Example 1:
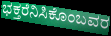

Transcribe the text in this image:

ಭಕ್ತರೆನಿಸಿಕೊಂಬವರ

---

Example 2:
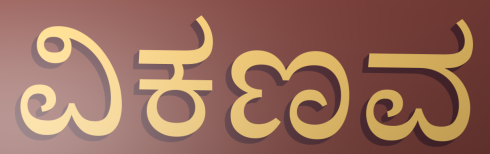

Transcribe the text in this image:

ವಿಕಣವ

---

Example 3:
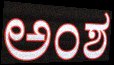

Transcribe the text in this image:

ಅಂಶ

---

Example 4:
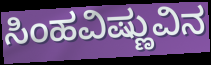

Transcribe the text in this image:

ಸಿಂಹವಿಷ್ಣುವಿನ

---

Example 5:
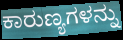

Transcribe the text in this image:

ಕಾರುಣ್ಯಗಳನ್ನು